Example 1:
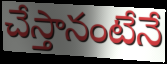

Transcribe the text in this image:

చేస్తానంటేనే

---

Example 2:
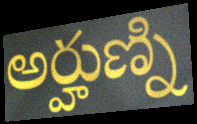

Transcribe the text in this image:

అర్హుణ్ని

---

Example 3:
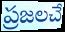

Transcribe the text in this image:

ప్రజలచే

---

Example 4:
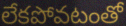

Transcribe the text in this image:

లేకపోవటంతో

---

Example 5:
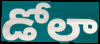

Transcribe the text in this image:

డోలా